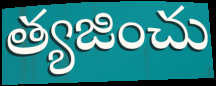
త్యజించు